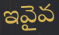
ఇవైవ